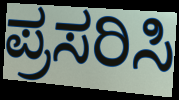
ಪ್ರಸರಿಸಿ